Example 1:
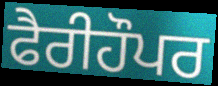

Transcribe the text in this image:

ਫੈਰੀਹੌਪਰ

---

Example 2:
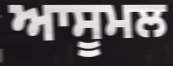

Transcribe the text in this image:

ਆਸੂਮਲ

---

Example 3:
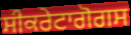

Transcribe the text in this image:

ਸੀਕਰੇਟਾਗੋਗਸ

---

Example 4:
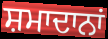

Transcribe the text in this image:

ਸ਼ਮਾਦਾਨਾਂ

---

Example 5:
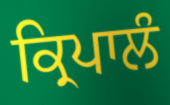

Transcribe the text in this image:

ਕ੍ਰਿਪਾਲੰ